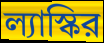
ল্যাস্কির